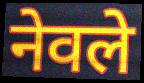
नेवले